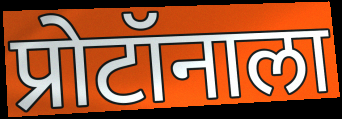
प्रोटॉनाला